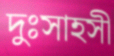
দুঃসাহসী